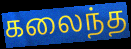
கலைந்த